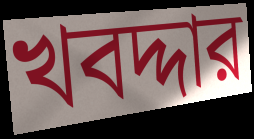
খবদ্দার